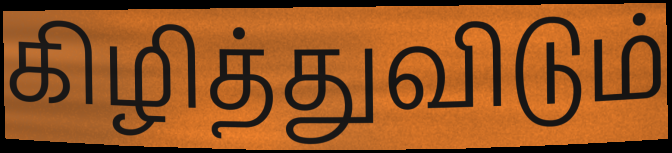
கிழித்துவிடும்